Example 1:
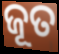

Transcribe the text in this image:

ଜୂତ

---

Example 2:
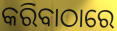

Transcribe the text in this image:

କରିବାଠାରେ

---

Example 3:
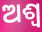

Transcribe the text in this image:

ଅଶ୍ବ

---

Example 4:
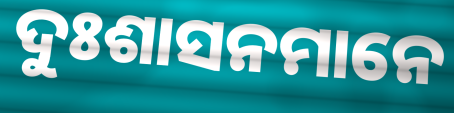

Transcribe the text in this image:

ଦୁଃଶାସନମାନେ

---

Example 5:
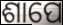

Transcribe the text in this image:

ଶାପେ